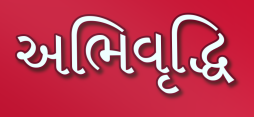
અભિવૃદ્ધિ